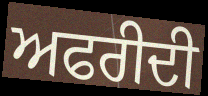
ਅਫਰੀਦੀ